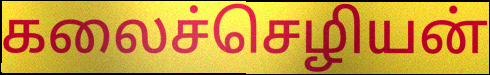
கலைச்செழியன்